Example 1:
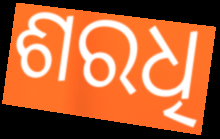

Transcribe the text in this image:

ଶରଧି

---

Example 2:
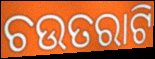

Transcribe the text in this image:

ଚଉତରାଟି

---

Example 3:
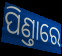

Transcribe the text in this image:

ପିଣ୍ତାରେ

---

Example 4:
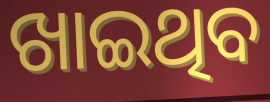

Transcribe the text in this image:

ଖାଇଥିବ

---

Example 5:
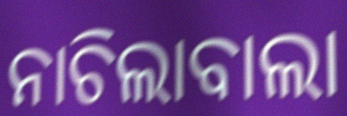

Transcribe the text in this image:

ନାଚିଲାବାଲା